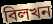
বিলখন